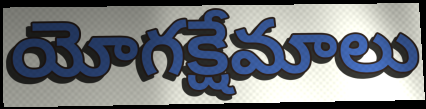
యోగక్షేమాలు